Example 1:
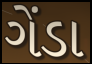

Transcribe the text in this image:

ગેંડા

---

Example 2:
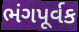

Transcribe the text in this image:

ભંગપૂર્વક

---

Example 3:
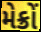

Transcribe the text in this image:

મેક્રોં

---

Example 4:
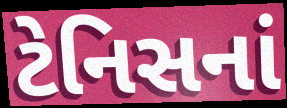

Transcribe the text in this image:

ટેનિસનાં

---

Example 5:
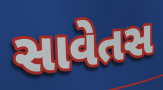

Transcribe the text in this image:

સાવેતસ